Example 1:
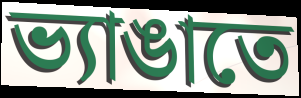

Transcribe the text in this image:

ভ্যাঙাতে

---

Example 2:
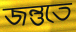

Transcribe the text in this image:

জন্তুতে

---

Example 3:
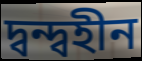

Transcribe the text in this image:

দ্বন্দ্বহীন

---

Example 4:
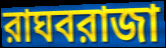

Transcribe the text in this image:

রাঘবরাজা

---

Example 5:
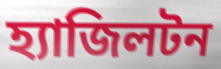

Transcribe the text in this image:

হ্যাজিলটন